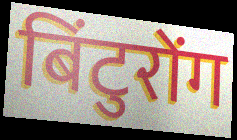
बिंटुरोंग